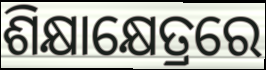
ଶିକ୍ଷାକ୍ଷେତ୍ରରେ